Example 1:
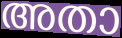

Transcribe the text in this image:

അതാ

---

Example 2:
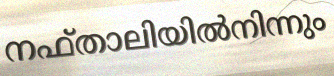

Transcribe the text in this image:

നഫ്താലിയിൽനിന്നും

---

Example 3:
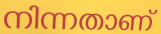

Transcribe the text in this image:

നിന്നതാണ്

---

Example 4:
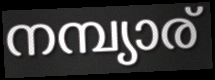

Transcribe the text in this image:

നമ്പ്യാര്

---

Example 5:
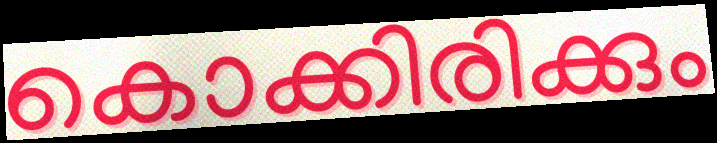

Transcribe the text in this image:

കൊക്കിരിക്കും